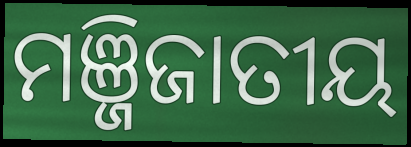
ମଞ୍ଜିଜାତୀୟ